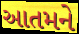
આતમને